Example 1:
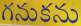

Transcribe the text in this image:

గనుకను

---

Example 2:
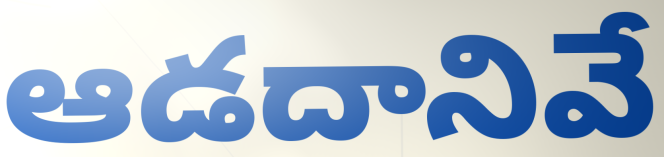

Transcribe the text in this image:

ఆడదానివే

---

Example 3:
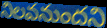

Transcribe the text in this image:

నిలవనుందని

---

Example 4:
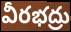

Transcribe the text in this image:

వీరభద్రు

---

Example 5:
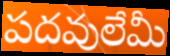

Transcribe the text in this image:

పదవులేమీ